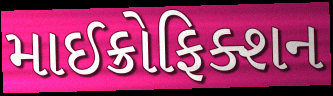
માઈક્રોફિક્શન